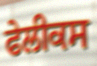
ਫੇਲੀਕਸ